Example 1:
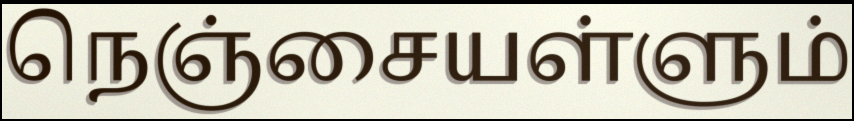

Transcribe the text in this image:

நெஞ்சையள்ளும்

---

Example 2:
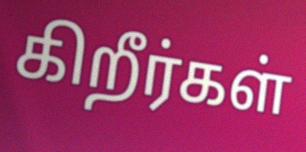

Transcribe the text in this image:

கிறீர்கள்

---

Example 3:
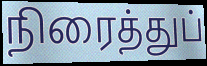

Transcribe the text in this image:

நிரைத்துப்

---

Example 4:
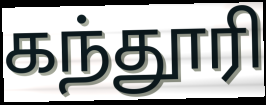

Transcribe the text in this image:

கந்தூரி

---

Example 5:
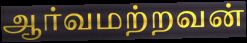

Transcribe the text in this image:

ஆர்வமற்றவன்